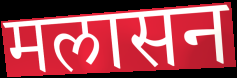
मलासन